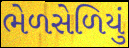
ભેળસેળિયું